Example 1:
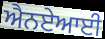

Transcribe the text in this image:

ਐਨਏਆਈ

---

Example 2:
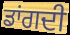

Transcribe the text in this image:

ਡਾਂਗਦੀ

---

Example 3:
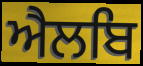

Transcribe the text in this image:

ਐਲਬਿ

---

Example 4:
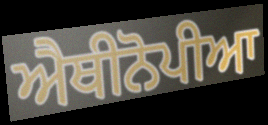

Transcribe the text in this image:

ਐਥੀਨੋਪੀਆ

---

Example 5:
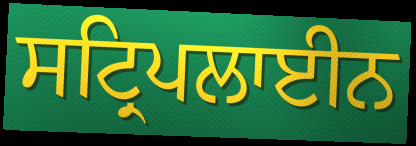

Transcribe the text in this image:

ਸਟ੍ਰਿਪਲਾਈਨ